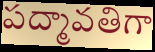
పద్మావతిగా